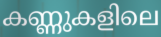
കണ്ണുകളിലെ